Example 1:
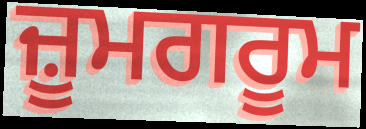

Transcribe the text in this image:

ਜ਼ੂਮਗਰੂਮ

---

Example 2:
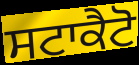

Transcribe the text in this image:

ਸਟਾਕੈਟੋ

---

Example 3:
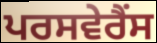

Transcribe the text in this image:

ਪਰਸਵੇਰੈਂਸ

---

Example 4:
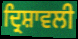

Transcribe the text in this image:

ਦ੍ਰਿਸ਼ਾਵਲੀ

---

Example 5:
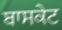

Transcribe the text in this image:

ਬਾਸਕੇਟ